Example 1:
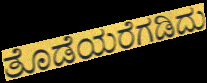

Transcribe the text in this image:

ತೊಡೆಯರೆಗಡಿದು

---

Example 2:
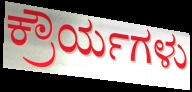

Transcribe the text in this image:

ಕ್ರೌರ್ಯಗಳು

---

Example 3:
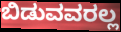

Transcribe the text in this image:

ಬಿಡುವವರಲ್ಲ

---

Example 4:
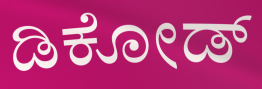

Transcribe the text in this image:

ಡಿಕೋಡ್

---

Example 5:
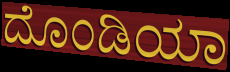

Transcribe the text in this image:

ದೊಂಡಿಯಾ